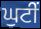
ਘੁਟੀਂ